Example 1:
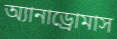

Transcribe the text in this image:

অ্যানাড্রোমাস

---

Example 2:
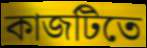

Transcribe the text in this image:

কাজটিতে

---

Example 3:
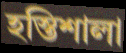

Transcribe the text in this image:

হস্তিশালা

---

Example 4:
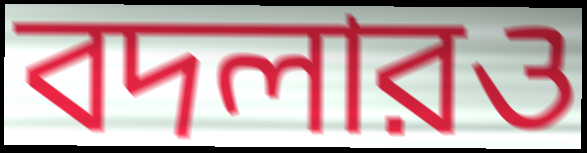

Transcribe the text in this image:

বদলারও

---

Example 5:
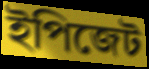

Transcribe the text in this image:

ইপিজেট